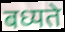
बध्यते